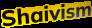
Shaivism